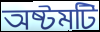
অষ্টমটি